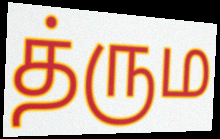
த்ரும